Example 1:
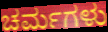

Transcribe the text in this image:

ಚರ್ಮಗಳು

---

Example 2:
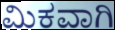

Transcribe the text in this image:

ಮಿಕವಾಗಿ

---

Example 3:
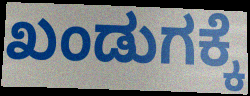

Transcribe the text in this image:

ಖಂಡುಗಕ್ಕೆ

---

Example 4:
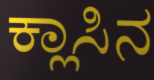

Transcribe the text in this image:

ಕ್ಲಾಸಿನ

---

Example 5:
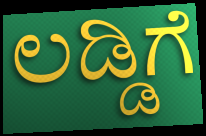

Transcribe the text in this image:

ಲಡ್ಡಿಗೆ